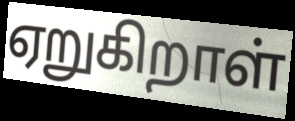
ஏறுகிறாள்